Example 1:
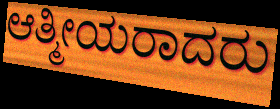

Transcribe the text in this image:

ಆತ್ಮೀಯರಾದರು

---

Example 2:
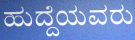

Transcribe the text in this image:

ಹುದ್ದೆಯವರು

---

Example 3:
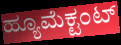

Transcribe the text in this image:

ಹ್ಯೂಮೆಕ್ಟಂಟ್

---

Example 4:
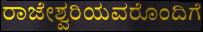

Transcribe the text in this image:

ರಾಜೇಶ್ವರಿಯವರೊಂದಿಗೆ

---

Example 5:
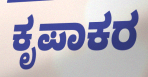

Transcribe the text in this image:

ಕೃಪಾಕರ